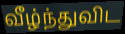
வீழ்ந்துவிட